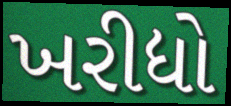
ખરીદ્યો